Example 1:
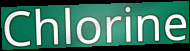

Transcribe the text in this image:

Chlorine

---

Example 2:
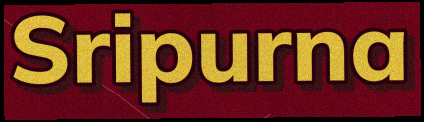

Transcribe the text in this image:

Sripurna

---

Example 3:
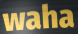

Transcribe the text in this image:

waha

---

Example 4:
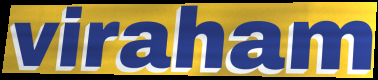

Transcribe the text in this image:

viraham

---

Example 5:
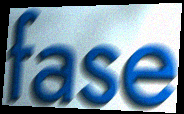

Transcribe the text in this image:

fase